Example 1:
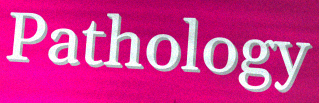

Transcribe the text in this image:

Pathology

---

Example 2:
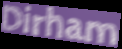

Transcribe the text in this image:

Dirham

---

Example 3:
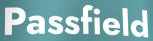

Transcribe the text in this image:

Passfield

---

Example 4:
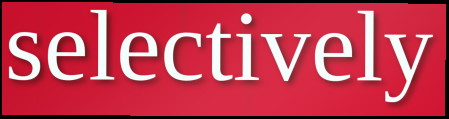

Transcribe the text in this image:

selectively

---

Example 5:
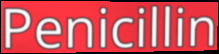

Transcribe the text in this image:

Penicillin